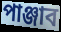
পাঞ্জাব